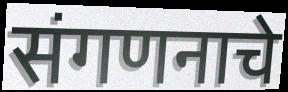
संगणनाचे